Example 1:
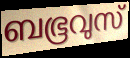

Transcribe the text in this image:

ബഭൂവുസ്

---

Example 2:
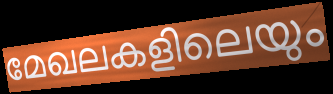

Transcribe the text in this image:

മേഖലകളിലെയും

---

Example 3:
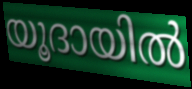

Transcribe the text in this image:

യൂദായിൽ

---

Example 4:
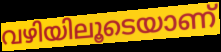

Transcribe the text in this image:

വഴിയിലൂടെയാണ്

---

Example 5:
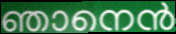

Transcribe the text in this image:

ഞാനെൻ